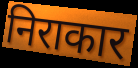
निराकार